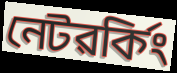
নেটৱৰ্কিং